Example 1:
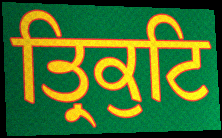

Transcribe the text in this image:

ਤ੍ਰਿਕੁਟਿ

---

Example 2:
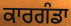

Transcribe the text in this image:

ਕਾਰਗੰਡਾ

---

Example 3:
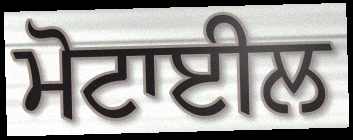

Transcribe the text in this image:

ਮੋਟਾਈਲ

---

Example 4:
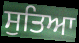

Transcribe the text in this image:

ਸੁਤਿਆ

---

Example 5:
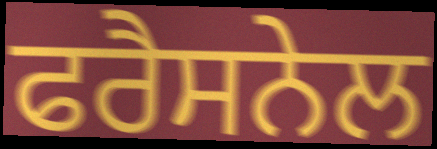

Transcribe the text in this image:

ਫਰੈਸਨੇਲ